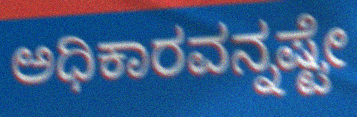
ಅಧಿಕಾರವನ್ನಷ್ಟೇ